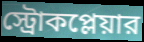
স্ট্রোকপ্লেয়ার